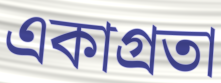
একাগ্ৰতা